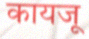
कायजू